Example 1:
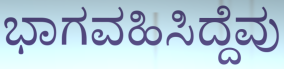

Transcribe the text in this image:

ಭಾಗವಹಿಸಿದ್ದೆವು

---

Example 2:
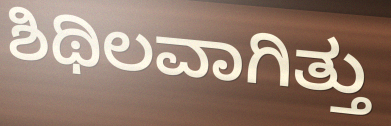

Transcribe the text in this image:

ಶಿಥಿಲವಾಗಿತ್ತು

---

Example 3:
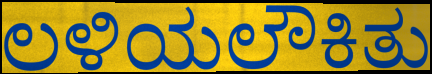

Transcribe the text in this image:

ಲಳಿಯಲೌಕಿತು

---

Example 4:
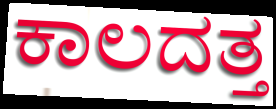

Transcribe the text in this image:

ಕಾಲದತ್ತ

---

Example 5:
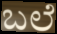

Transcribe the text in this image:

ಬಲೆ